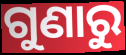
ଗୁଣାରୁ